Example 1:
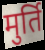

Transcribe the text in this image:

मुर्ति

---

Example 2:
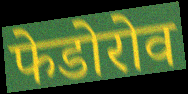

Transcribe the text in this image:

फेडोरोव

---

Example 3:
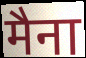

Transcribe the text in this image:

मैना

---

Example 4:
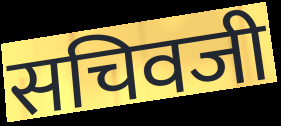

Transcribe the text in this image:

सचिवजी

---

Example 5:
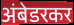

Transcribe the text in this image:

अंबेडरकर